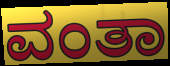
ವಂತಾ